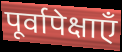
पूर्वापेक्षाएँ